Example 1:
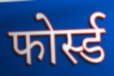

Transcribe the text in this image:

फोर्स्ड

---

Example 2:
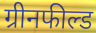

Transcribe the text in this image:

ग्रीनफील्ड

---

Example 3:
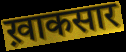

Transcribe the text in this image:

ख़ाकसार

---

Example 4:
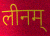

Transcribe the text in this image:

लीनम्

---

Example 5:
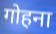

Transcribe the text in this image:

गोहना